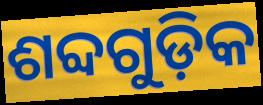
ଶବ୍ଦଗୁଡ଼ିକ